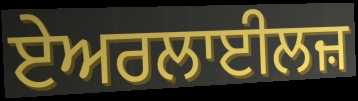
ਏਅਰਲਾਈਲਜ਼